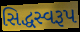
સિદ્ધસ્વરૂપ